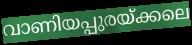
വാണിയപ്പുരയ്ക്കലെ